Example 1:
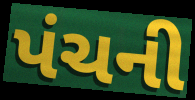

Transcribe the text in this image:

પંચની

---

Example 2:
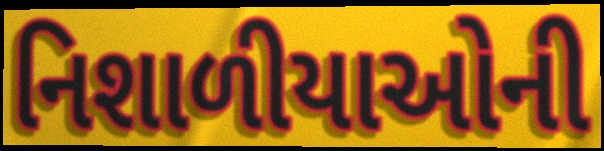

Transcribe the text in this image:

નિશાળીયાઓની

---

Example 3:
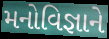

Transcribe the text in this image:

મનોવિજ્ઞાને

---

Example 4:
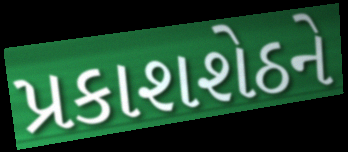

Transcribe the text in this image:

પ્રકાશશેઠને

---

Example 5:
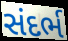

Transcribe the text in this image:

સંદર્ભ